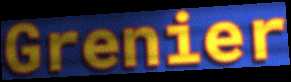
Grenier